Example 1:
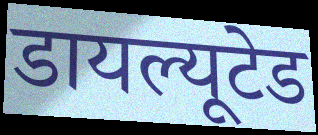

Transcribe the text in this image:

डायल्यूटेड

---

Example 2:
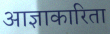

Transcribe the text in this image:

आज्ञाकारिता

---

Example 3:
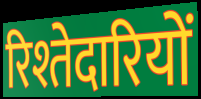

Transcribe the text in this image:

रिश्तेदारियों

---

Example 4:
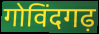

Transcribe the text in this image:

गोविंदगढ़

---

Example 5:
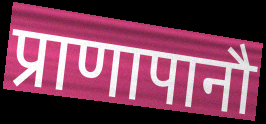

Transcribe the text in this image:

प्राणापानौ